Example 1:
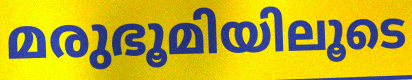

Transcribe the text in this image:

മരുഭൂമിയിലൂടെ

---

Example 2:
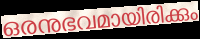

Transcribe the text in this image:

ഒരനുഭവമായിരിക്കും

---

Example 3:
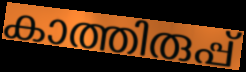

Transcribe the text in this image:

കാത്തിരുപ്പ്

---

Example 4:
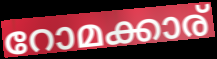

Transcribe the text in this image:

റോമക്കാര്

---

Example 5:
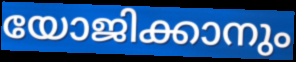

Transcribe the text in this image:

യോജിക്കാനും